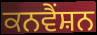
ਕਨਵੈੰਸ਼ਨ